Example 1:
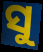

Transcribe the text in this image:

ସୁ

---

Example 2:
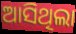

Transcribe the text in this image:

ଆସିଥିଲା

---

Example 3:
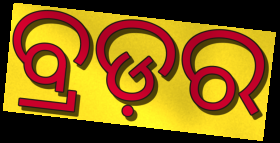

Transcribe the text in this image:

ବ୍ରଡ଼ର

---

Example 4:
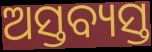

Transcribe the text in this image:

ଅସ୍ତବ୍ୟସ୍ତ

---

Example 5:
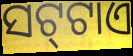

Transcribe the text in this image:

ସଟ୍‍ଟାଏ